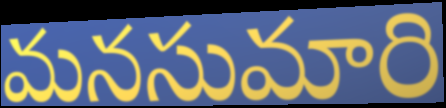
మనసుమారి